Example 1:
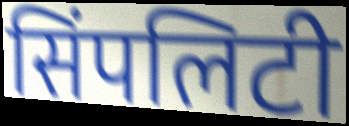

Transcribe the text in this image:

सिंपलिटी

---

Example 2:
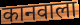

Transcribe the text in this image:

कानवाला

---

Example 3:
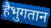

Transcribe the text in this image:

हैभुगतान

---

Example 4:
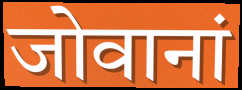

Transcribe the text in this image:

जोवानां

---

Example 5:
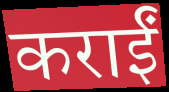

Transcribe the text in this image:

कराईं